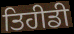
ਤਿਹੀਡੀ